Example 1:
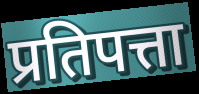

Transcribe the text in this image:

प्रतिपत्ता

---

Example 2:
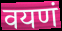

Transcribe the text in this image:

वयणं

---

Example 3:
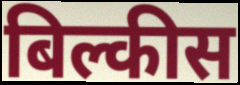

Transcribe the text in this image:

बिल्कीस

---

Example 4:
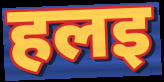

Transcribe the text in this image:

हलइ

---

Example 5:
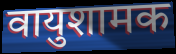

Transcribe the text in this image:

वायुशामक